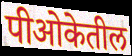
पीओकेतील